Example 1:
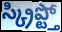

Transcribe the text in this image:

స్క్రిప్ట్తో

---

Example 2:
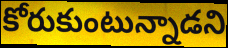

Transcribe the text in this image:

కోరుకుంటున్నాడని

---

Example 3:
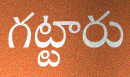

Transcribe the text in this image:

గట్టారు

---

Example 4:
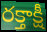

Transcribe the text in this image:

రక్తాక్షీ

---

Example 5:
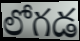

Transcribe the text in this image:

లోగడ